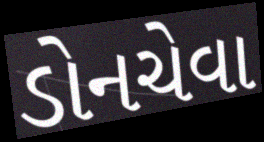
ડોનચેવા